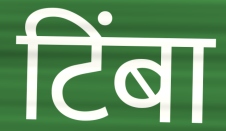
टिंबा